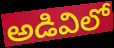
అడివిలో